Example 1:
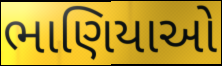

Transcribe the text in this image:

ભાણિયાઓ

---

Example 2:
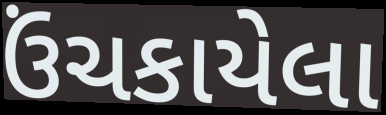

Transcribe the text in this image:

ઉંચકાયેલા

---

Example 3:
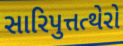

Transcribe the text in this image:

સારિપુત્તત્થેરો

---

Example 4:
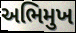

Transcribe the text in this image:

અભિમુખ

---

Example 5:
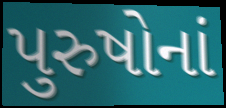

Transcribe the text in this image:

પુરુષોનાં